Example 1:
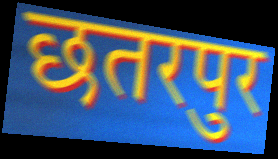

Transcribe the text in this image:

छतरपुर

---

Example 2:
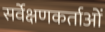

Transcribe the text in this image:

सर्वेक्षणकर्ताओं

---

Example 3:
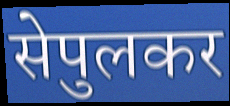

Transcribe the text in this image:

सेपुलकर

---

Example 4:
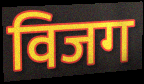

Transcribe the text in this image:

विजग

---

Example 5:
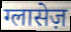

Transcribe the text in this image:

ग्लासेज़